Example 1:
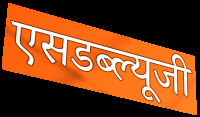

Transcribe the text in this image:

एसडब्ल्यूजी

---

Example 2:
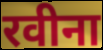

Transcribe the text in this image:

रवीना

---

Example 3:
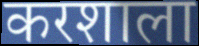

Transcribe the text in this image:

करशाला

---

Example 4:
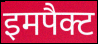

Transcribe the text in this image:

इमपैक्ट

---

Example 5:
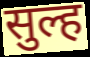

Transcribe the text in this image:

सुल्ह